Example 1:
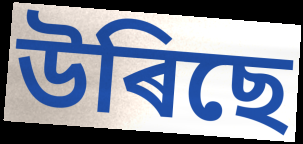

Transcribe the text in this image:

উৰিছে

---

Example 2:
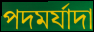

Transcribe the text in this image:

পদমৰ্যাদা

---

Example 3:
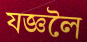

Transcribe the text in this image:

যজ্ঞলৈ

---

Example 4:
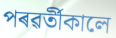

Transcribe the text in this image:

পৰৱৰ্তীকালে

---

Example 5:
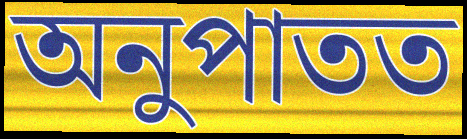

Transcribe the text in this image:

অনুপাতত